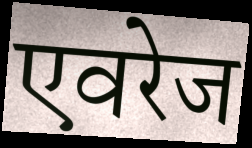
एवरेज